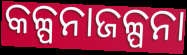
କଳ୍ପନାଜଳ୍ପନା